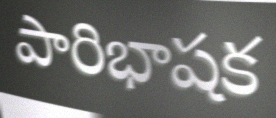
పారిభాషక